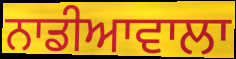
ਨਾਡੀਆਵਾਲਾ